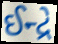
ઈન્દ્રે